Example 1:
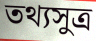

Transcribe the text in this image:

তথ্যসুত্র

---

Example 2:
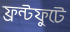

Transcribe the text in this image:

ফ্রন্টফুটে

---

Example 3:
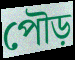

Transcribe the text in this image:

পৌড়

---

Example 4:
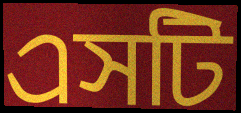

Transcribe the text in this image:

এসটি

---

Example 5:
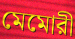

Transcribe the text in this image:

মেমোরী